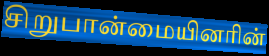
சிறுபான்மையினரின்